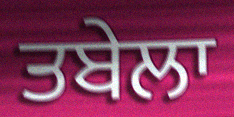
ਤਬੇਲਾ